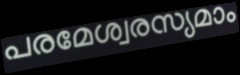
പരമേശ്വരസ്യമാം